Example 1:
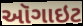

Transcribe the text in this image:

ઑગાઇટ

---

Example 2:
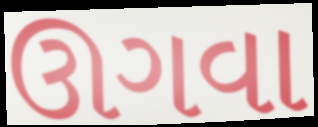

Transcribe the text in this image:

ઊગવા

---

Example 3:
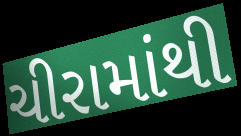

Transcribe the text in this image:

ચીરામાંથી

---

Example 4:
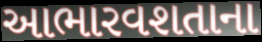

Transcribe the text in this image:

આભારવશતાના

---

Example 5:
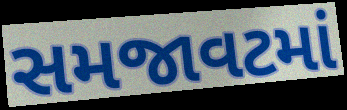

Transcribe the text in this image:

સમજાવટમાં